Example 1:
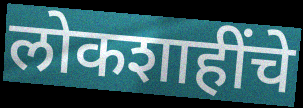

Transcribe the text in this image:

लोकशाहींचे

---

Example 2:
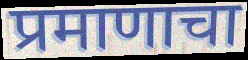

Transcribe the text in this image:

प्रमाणाचा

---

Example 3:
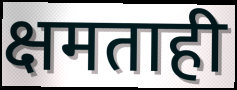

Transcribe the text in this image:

क्षमताही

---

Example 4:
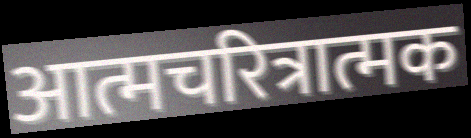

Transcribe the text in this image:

आत्मचरित्रात्मक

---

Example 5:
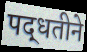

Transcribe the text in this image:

पद्धतीने